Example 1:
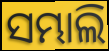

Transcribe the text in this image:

ସମ୍ଭାଲି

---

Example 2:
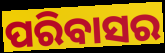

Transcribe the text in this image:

ପରିବାସର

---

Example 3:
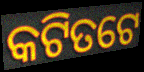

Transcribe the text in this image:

କଟିତଟେ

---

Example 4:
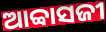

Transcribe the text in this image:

ଆବ୍ବାସଜୀ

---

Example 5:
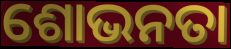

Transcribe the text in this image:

ଶୋଭନତା